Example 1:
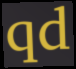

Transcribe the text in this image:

qd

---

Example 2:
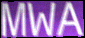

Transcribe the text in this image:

MWA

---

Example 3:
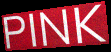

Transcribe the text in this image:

PINK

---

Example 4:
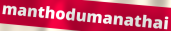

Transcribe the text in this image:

manthodumanathai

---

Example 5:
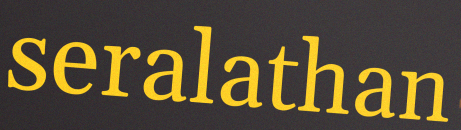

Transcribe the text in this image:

seralathan